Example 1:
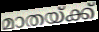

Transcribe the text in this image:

മാതയ്ക്ക്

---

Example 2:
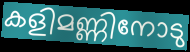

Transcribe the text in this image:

കളിമണ്ണിനോടു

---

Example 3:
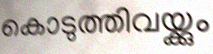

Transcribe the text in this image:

കൊടുത്തിവയ്ക്കും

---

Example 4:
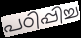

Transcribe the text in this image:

പഠിപ്പിച്ച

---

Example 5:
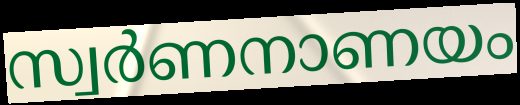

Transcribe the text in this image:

സ്വർണനാണയം